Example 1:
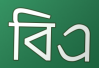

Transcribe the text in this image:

বিএ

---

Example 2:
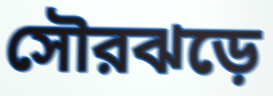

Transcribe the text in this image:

সৌরঝড়ে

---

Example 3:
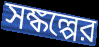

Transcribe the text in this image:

সঙ্কল্পের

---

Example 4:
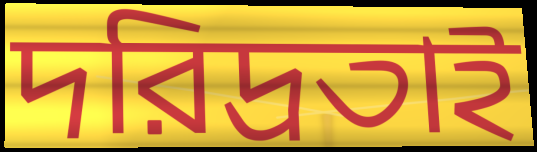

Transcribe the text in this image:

দরিদ্রতাই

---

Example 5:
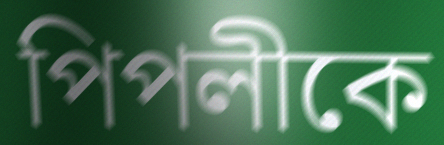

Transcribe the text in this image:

পিপলীকে